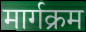
मार्गक्रम